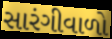
સારંગીવાળો